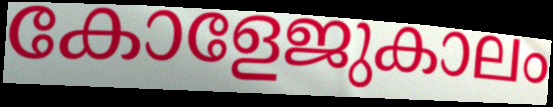
കോളേജുകാലം